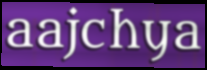
aajchya